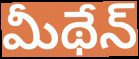
మీథేన్